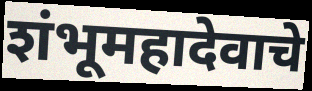
शंभूमहादेवाचे